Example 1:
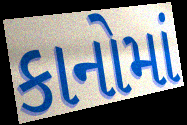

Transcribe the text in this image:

કાનોમાં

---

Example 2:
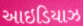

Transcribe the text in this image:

આઇડિયાઝ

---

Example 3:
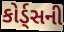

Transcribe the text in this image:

કોર્ડ્સની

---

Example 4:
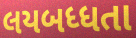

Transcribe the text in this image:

લયબધ્ધતા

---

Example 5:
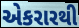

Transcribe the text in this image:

એકરારથી